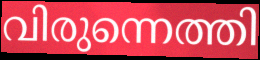
വിരുന്നെത്തി